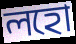
লহো